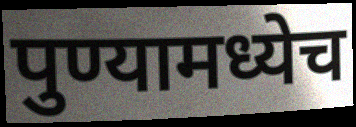
पुण्यामध्येच